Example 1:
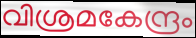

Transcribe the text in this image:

വിശ്രമകേന്ദ്രം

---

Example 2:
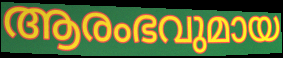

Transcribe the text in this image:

ആരംഭവുമായ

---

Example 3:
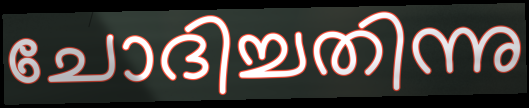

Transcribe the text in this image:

ചോദിച്ചതിന്നു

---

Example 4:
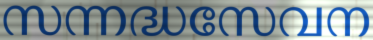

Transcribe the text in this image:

സന്നദ്ധസേവന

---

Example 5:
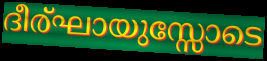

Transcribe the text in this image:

ദീര്ഘായുസ്സോടെ